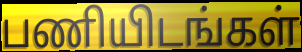
பணியிடங்கள்